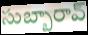
సుబ్బారావ్